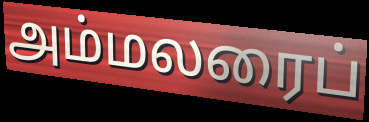
அம்மலரைப்